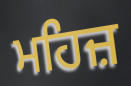
ਮਹਿਜ਼